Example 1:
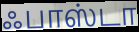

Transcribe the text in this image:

ஃபாஸ்டா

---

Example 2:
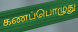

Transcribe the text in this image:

கணப்பொழுது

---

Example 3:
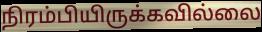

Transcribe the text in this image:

நிரம்பியிருக்கவில்லை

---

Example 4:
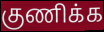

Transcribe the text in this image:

குணிக்க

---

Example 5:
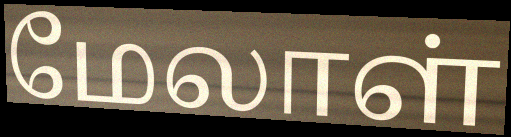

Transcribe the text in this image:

மேலாள்